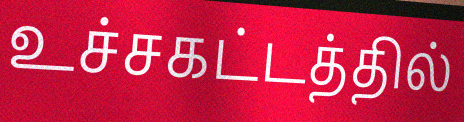
உச்சகட்டத்தில்